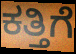
ಕತ್ತಿಗೆ